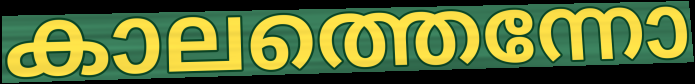
കാലത്തെന്നോ